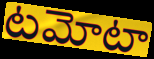
టమోటా